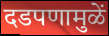
दडपणामुळें